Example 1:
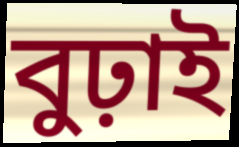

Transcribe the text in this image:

বুঢ়াই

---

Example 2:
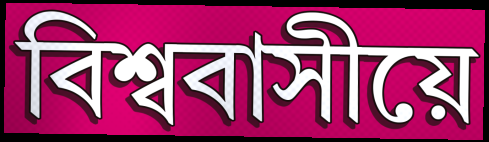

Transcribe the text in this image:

বিশ্ববাসীয়ে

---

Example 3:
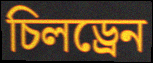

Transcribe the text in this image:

চিলড্ৰেন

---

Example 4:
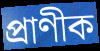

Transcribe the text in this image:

প্ৰাণীক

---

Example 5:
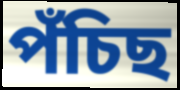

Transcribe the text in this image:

পঁচিছ